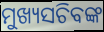
ମୁଖ୍ୟସଚିବଙ୍କ